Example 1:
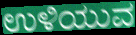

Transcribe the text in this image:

ಉಳಿಯುವ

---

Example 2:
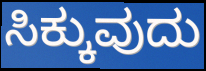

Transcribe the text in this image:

ಸಿಕ್ಕುವುದು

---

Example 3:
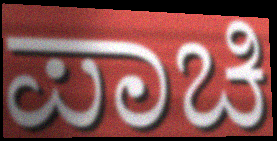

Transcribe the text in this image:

ಪಾಚಿ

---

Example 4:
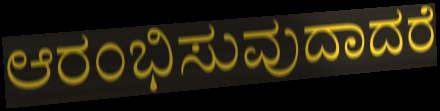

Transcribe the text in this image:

ಆರಂಭಿಸುವುದಾದರೆ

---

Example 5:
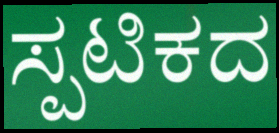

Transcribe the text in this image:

ಸ್ಪಟಿಕದ